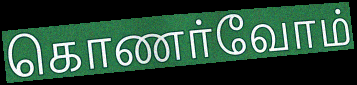
கொணர்வோம்